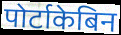
पोर्टाकेबिन